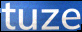
tuze